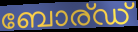
ബോര്ഡ്